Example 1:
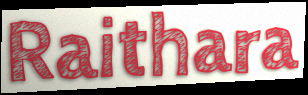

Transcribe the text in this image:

Raithara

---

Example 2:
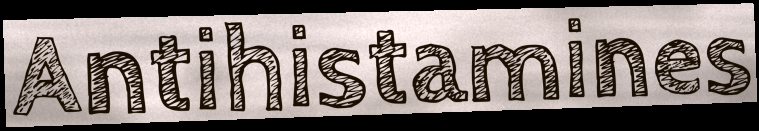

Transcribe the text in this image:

Antihistamines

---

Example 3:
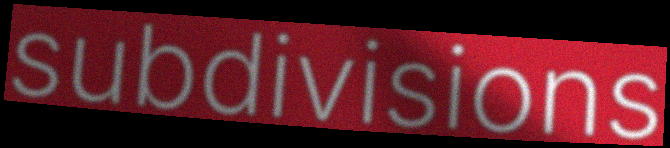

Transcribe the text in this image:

subdivisions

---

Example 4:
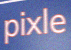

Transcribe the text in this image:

pixle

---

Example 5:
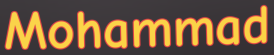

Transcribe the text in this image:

Mohammad